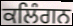
ਕਲਿੰਗਨ